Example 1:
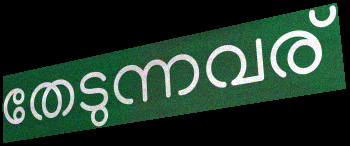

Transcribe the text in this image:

തേടുന്നവര്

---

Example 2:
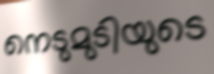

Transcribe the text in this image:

നെടുമുടിയുടെ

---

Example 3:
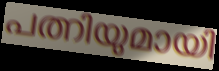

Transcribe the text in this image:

പത്നിയുമായി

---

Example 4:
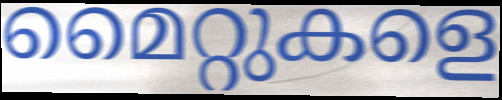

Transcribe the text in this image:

മൈറ്റുകളെ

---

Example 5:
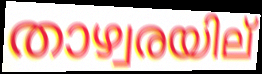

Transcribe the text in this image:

താഴ്വരയില്